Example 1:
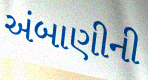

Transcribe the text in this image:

અંબાણીની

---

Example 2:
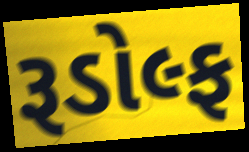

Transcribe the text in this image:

રૂડોલ્ફ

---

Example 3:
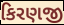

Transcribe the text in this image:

કિરણજી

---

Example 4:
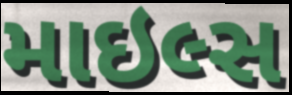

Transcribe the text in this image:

માઇલ્સ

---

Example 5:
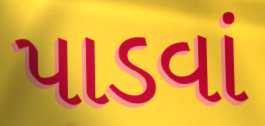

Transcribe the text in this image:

પાડવાં